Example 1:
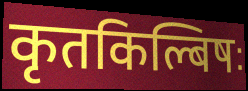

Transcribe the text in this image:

कृतकिल्बिषः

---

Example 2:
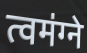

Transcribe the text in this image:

त्वम॑ग्ने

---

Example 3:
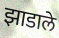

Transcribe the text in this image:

झाडाले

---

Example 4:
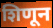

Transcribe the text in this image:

शिणून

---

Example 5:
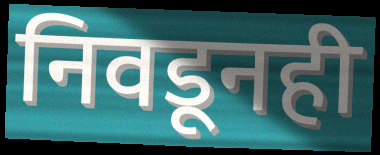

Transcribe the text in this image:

निवडूनही